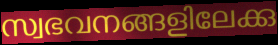
സ്വഭവനങ്ങളിലേക്കു